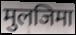
मुलजिमा